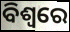
ବିଶ୍ଵରେ